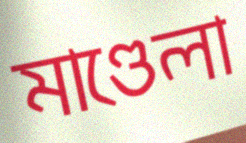
মাণ্ডেলা